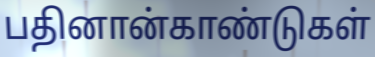
பதினான்காண்டுகள்